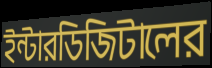
ইন্টারডিজিটালের